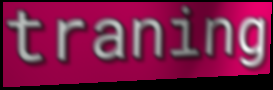
traning